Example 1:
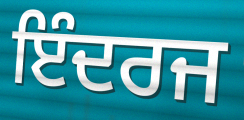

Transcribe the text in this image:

ਇੰਦਰਜ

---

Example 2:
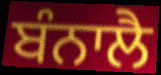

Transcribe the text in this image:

ਬੰਨਾਲੈ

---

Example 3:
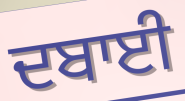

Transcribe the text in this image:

ਦਬਾਈ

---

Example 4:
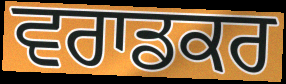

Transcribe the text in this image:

ਵਰਾਡਕਰ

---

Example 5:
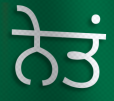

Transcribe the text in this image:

ਨੇਤਂ